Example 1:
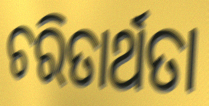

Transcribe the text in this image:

ଚରିତାର୍ଥତା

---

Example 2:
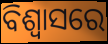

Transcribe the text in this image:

ବିଶ୍ୱାସରେ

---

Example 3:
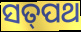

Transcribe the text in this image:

ସତ୍‌ପଥ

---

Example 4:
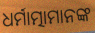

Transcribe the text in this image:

ଧର୍ମାତ୍ମାମାନଙ୍କ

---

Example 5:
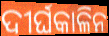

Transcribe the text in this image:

ଦୀର୍ଘକାଳିନ